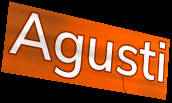
Agusti